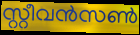
സ്റ്റീവൻസൺ